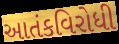
આતંકવિરોધી